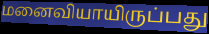
மனைவியாயிருப்பது